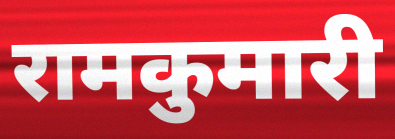
रामकुमारी